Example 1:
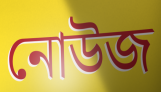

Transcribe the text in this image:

নোউজ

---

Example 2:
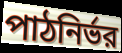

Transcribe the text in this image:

পাঠনির্ভর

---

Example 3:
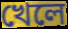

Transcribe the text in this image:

খেলে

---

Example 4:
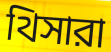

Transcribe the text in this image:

থিসারা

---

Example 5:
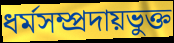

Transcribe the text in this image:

ধর্মসম্প্রদায়ভুক্ত